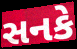
સનકે